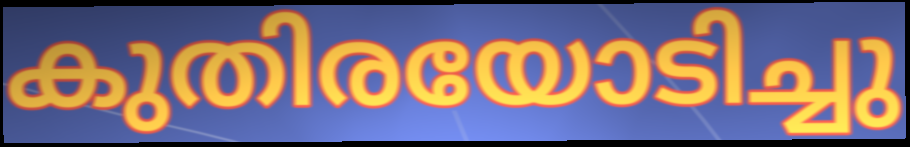
കുതിരയോടിച്ചു